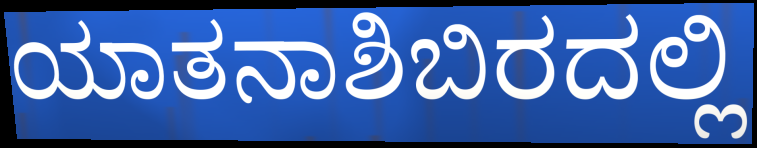
ಯಾತನಾಶಿಬಿರದಲ್ಲಿ